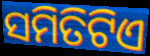
ସମିତିଟିଏ